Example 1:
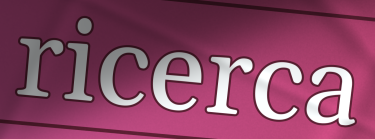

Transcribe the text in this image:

ricerca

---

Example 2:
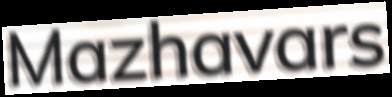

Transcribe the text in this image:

Mazhavars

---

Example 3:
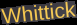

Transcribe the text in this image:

Whittick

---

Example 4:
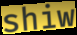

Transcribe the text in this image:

shiw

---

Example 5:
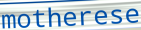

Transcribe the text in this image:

motherese